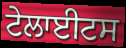
ਟੇਲਾਈਟਸ